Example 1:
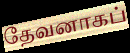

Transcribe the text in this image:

தேவனாகப்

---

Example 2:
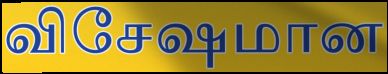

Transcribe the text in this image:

விசேஷமான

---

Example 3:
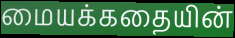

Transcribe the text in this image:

மையக்கதையின்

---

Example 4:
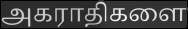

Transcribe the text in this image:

அகராதிகளை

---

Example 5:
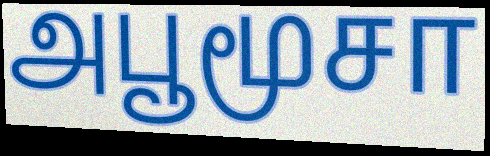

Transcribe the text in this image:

அபூமூசா